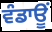
ਵੰਡਾਊਂ